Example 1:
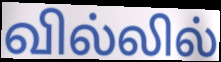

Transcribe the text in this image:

வில்லில்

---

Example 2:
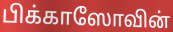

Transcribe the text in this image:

பிக்காஸோவின்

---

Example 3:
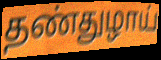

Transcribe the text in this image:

தண்துழாய்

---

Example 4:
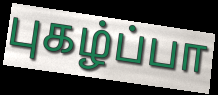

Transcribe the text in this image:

புகழ்ப்பா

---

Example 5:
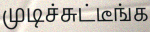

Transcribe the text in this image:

முடிச்சுட்டீங்க